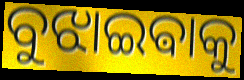
ବୁଝାଇଵାକୁ